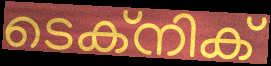
ടെക്നിക്